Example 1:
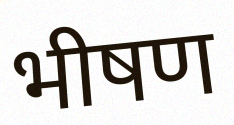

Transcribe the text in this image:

भीषण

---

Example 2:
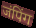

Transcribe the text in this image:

जंपिंग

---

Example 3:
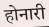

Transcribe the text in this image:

होनारी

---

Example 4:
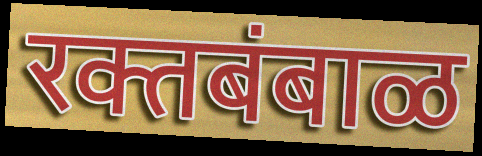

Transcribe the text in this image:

रक्‍तबंबाळ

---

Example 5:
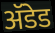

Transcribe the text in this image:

ॲडेड